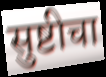
सुष्टीचा